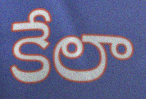
కేలా